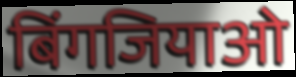
बिंगजियाओ